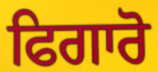
ਫਿਗਾਰੋ